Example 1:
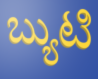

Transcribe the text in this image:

ಬ್ಯುಟಿ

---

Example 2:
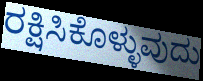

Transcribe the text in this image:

ರಕ್ಷಿಸಿಕೊಳ್ಳುವುದು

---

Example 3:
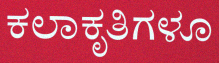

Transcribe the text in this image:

ಕಲಾಕೃತಿಗಳೂ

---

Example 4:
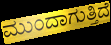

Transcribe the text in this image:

ಮುಂದಾಗುತ್ತಿದೆ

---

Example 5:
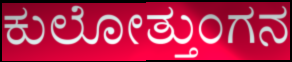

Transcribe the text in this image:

ಕುಲೋತ್ತುಂಗನ